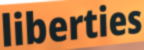
liberties